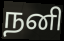
நனி